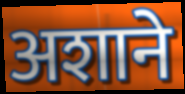
अशाने